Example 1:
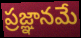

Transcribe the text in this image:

ప్రజ్ఞానమే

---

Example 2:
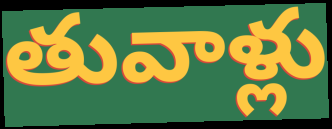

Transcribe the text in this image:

తువాళ్లు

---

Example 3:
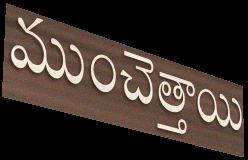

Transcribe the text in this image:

ముంచెత్తాయి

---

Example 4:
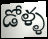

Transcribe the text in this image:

డోళ్ళ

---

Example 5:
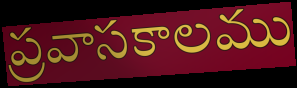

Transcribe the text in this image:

ప్రవాసకాలము